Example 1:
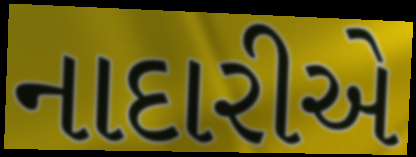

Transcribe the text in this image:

નાદારીએ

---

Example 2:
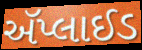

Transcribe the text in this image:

ઍપ્લાઈડ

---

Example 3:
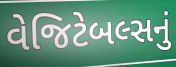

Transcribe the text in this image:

વેજિટેબલ્સનું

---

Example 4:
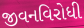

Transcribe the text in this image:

જીવનવિરોધી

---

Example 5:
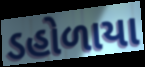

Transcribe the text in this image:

ડહોળાયા